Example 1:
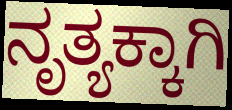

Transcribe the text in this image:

ನೃತ್ಯಕ್ಕಾಗಿ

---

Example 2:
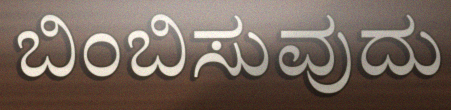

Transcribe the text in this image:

ಬಿಂಬಿಸುವುದು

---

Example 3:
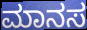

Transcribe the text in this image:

ಮಾನಸ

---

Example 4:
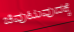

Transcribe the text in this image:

ಚಿವುಟುವುದಕ್ಕೆ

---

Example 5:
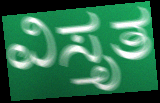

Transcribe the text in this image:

ವಿಸ್ತೃತ